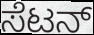
ಸೆಟನ್